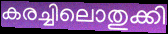
കരച്ചിലൊതുക്കി